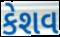
કેશવ